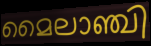
മൈലാഞ്ചി